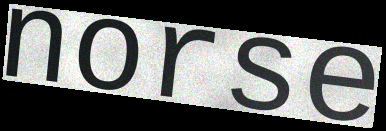
norse